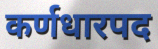
कर्णधारपद